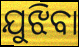
ଯୁଝିବା